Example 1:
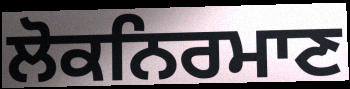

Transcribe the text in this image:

ਲੋਕਨਿਰਮਾਣ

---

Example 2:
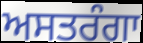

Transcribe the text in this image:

ਅਸਤਰੰਗਾ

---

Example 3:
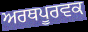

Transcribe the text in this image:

ਅਰਥਪੂਰਵਕ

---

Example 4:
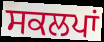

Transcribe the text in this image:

ਸਕਲਪਾਂ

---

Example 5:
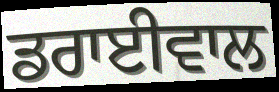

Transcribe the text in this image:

ਡਰਾਈਵਾਲ